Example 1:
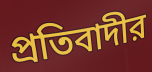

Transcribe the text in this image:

প্রতিবাদীর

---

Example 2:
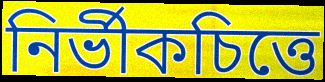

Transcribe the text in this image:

নির্ভীকচিত্তে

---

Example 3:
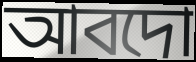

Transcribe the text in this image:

আবদো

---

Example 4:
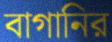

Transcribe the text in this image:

বাগানির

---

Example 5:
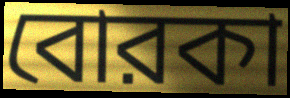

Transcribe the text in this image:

বোরকা